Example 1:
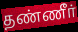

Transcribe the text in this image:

தண்ணீர்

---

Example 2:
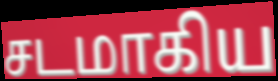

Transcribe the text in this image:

சடமாகிய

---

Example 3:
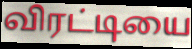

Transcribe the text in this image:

விரட்டியை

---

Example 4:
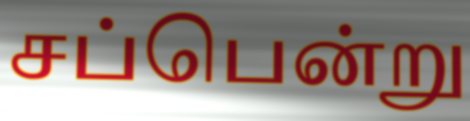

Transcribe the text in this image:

சப்பென்று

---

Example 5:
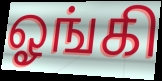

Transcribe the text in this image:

ஓங்கி